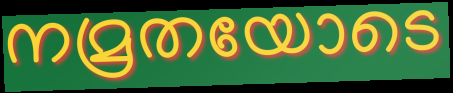
നമ്രതയോടെ